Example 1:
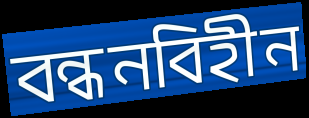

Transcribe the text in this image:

বন্ধনবিহীন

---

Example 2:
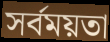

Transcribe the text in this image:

সর্বময়তা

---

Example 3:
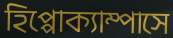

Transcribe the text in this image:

হিপ্পোক্যাম্পাসে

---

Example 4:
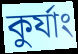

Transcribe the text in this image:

কুর্যাং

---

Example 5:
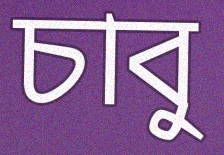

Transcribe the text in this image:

চাবু